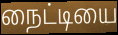
நைட்டியை